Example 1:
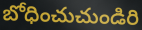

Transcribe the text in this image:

బోధించుచుండిరి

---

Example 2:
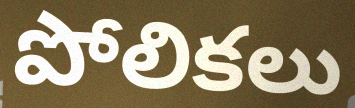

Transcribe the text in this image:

పోలికలు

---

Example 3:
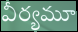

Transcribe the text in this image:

వీర్యమూ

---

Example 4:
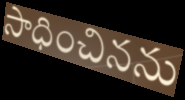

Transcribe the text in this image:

సాధించినను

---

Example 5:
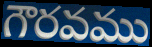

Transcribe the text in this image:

గౌరవము